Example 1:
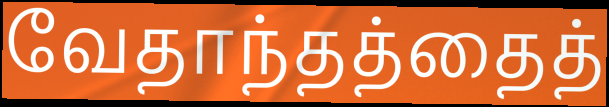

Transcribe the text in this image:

வேதாந்தத்தைத்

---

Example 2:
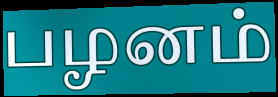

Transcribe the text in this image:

பழனம்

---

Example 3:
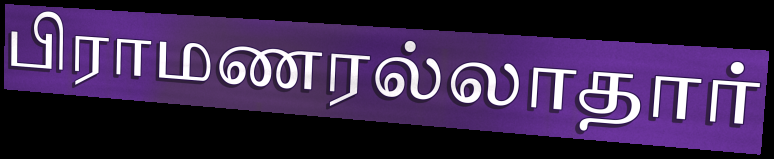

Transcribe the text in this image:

பிராமணரல்லாதார்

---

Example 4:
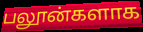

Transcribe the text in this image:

பலூன்களாக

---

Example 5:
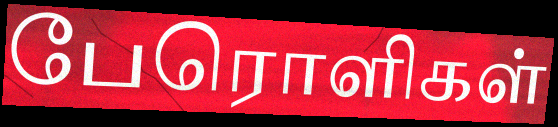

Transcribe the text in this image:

பேரொளிகள்